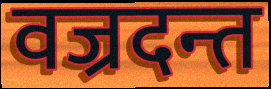
वज्रदन्त